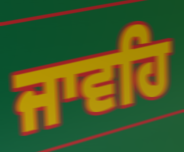
ਜਾਵਹਿ